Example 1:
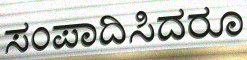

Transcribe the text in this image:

ಸಂಪಾದಿಸಿದರೂ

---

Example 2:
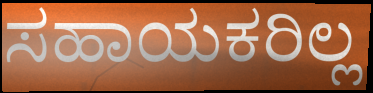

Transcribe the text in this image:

ಸಹಾಯಕರಿಲ್ಲ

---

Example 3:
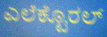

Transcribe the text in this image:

ಎಲೆಕ್ಟೊರಲ್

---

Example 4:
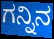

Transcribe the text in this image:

ಗನ್ನಿನ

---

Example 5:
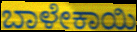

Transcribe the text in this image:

ಬಾಳೇಕಾಯಿ